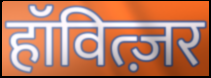
हॉवित्ज़र